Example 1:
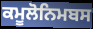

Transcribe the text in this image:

ਕਮੂਲੋਨਿਮਬਸ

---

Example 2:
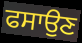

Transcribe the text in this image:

ਫਸਾਉਣ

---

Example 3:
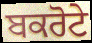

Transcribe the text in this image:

ਬਕਰੋਟੇ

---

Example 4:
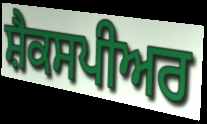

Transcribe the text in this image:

ਸ਼ੈਕਸਪੀਅਰ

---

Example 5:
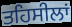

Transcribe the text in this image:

ਤਹਿਸੀਲਾਂ